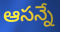
ఆసన్నే